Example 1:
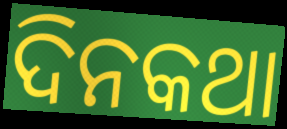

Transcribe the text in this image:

ଦିନକଥା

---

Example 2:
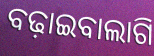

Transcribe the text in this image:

ବଢ଼ାଇବାଲାଗି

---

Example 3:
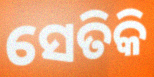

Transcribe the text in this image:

ସେତିକି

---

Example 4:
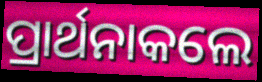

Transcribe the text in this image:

ପ୍ରାର୍ଥନାକଲେ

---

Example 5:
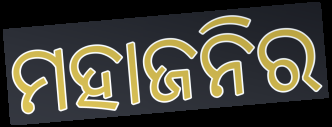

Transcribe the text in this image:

ମହାଜନିର